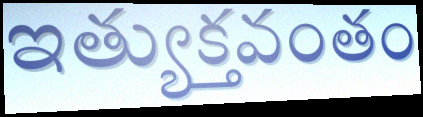
ఇత్యుక్తవంతం